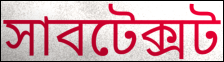
সাবটেক্সট